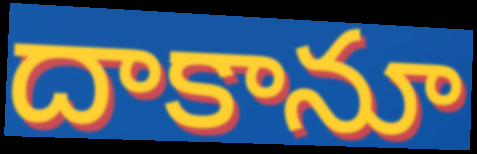
దాకానూ